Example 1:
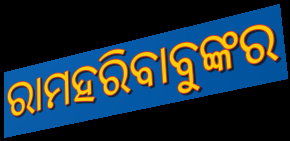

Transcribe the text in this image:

ରାମହରିବାବୁଙ୍କର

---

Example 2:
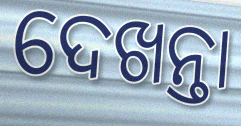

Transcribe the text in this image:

ଦେଖନ୍ତା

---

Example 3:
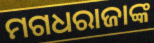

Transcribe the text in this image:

ମଗଧରାଜାଙ୍କ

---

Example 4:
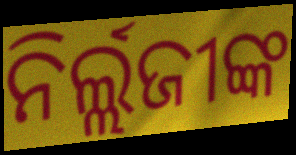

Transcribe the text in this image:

ନିର୍ଲ୍ଲଜୀଙ୍କ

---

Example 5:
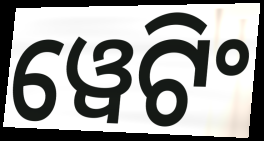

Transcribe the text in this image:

ୱେଟିଂ